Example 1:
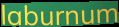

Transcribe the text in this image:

laburnum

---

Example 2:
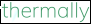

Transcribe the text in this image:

thermally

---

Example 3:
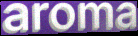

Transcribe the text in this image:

aroma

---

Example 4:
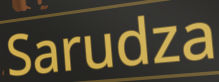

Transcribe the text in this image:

Sarudza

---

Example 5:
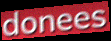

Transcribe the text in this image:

donees